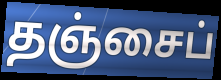
தஞ்சைப்